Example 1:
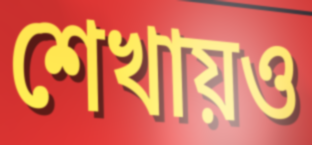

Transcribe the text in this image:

শেখায়ও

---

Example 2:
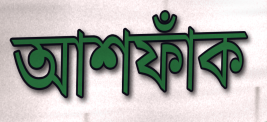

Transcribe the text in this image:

আশফাঁক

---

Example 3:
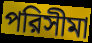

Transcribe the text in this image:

পরিসীমা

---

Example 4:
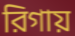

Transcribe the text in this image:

রিগায়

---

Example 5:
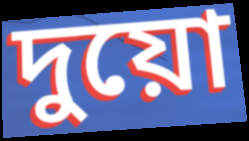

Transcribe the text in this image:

দুয়ো